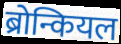
ब्रोन्कियल